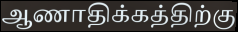
ஆணாதிக்கத்திற்கு